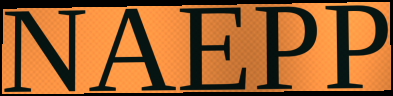
NAEPP